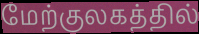
மேற்குலகத்தில்